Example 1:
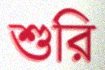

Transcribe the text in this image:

শুরি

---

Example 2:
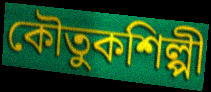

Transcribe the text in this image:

কৌতুকশিল্পী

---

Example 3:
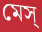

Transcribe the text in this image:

মেস্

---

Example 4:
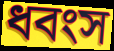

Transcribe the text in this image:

ধবংস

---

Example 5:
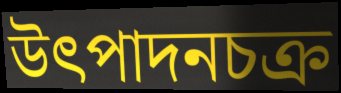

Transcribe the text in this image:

উৎপাদনচক্র